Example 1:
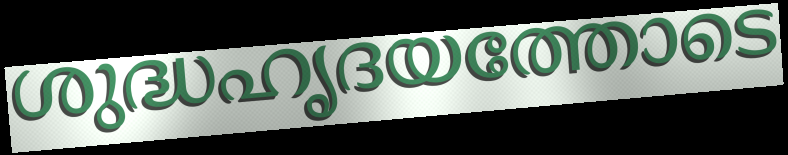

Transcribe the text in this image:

ശുദ്ധഹൃദയത്തോടെ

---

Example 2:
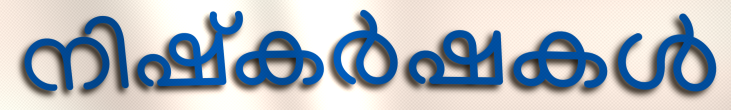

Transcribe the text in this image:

നിഷ്കർഷകൾ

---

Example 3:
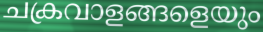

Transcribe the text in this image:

ചക്രവാളങ്ങളെയും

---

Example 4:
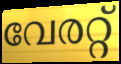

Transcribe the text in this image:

വേരറ്റ്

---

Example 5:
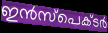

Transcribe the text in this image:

ഇൻസ്പെക്ടർ